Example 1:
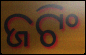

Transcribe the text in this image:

ଜଟିଂ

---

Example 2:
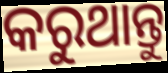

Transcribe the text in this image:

କରୁଥାନ୍ତୁ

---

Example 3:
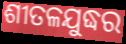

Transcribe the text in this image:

ଶୀତଳଯୁଦ୍ଧର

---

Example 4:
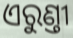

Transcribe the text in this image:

ଏରୁଣ୍ତୀ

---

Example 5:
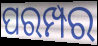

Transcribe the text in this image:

ପରମ୍ପର